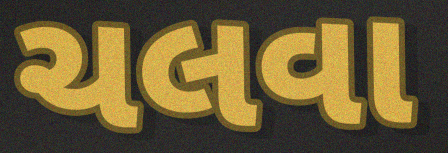
ચલવા